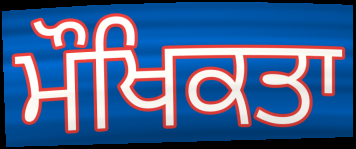
ਮੌਖਿਕਤਾ